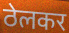
ठेलकर